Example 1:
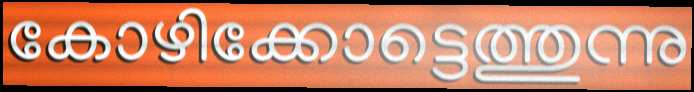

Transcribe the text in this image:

കോഴിക്കോട്ടെത്തുന്നു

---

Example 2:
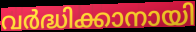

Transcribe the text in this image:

വർദ്ധിക്കാനായി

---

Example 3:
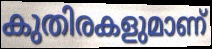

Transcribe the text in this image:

കുതിരകളുമാണ്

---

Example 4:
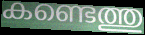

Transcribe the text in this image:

കണ്ടെത്തു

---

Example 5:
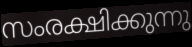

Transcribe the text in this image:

സംരക്ഷിക്കുന്നു